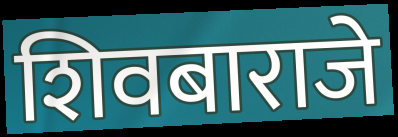
शिवबाराजे